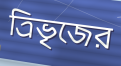
ত্রিভৃজের